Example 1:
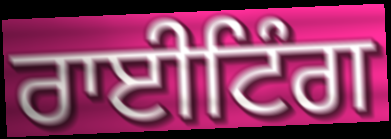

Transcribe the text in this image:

ਰਾਈਟਿੰਗ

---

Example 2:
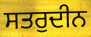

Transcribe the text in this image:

ਸਤਰੁਦੀਨ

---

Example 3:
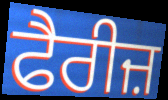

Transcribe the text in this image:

ਫੈਰੀਜ਼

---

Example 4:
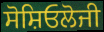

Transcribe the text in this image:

ਸੋਸ਼ਿਓਲੋਜੀ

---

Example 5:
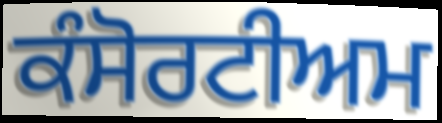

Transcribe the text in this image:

ਕੰਸੋਰਟੀਅਮ